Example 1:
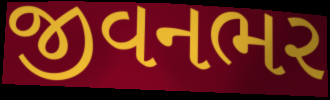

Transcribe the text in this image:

જીવનભર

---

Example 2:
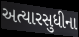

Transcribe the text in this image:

અત્યારસુધીના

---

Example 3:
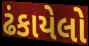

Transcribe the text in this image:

ઢંકાયેલો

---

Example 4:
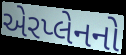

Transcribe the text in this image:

એરપ્લેનનો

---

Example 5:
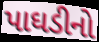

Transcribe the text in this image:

પાઘડીનો